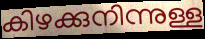
കിഴക്കുനിന്നുള്ള